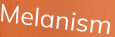
Melanism